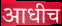
आधीच